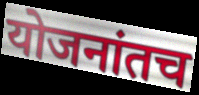
योजनांतच